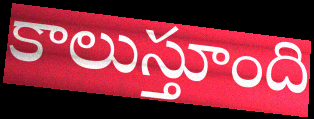
కాలుస్తూంది